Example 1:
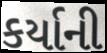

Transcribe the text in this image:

કર્યાની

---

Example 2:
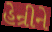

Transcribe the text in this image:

હેન્રીને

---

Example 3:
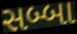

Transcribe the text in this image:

સબ્બા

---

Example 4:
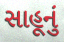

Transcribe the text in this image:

સાહૂનું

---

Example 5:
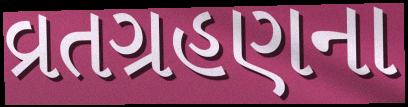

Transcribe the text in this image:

વ્રતગ્રહણના